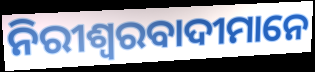
ନିରୀଶ୍ବରବାଦୀମାନେ